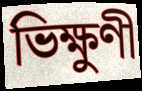
ভিক্ষুণী